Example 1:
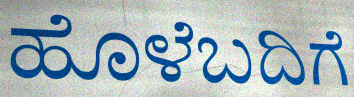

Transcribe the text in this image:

ಹೊಳೆಬದಿಗೆ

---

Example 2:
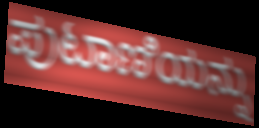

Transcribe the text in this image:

ಪುಟಾಣಿಯನ್ನು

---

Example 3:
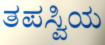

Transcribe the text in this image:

ತಪಸ್ವಿಯ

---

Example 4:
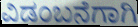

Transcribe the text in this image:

ವಿಡಂಬನೆಗಾಗಿ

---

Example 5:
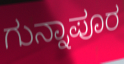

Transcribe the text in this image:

ಗುನ್ನಾಪೂರ